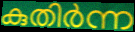
കുതിർന്ന